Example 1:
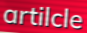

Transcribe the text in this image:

artilcle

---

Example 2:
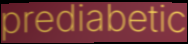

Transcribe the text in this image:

prediabetic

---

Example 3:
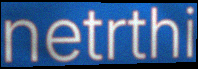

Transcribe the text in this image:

netrthi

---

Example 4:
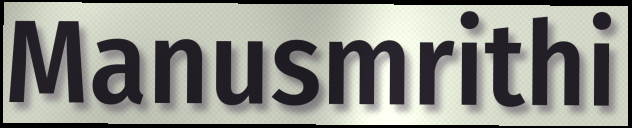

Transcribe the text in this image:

Manusmrithi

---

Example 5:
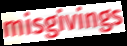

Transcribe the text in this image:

misgivings